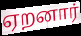
ஏறனார்